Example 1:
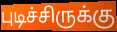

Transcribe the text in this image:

புடிச்சிருக்கு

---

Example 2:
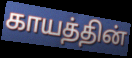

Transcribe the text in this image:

காயத்தின்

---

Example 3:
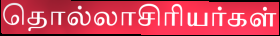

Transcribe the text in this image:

தொல்லாசிரியர்கள்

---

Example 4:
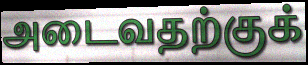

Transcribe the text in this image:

அடைவதற்குக்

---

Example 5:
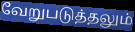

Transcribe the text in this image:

வேறுபடுத்தலும்